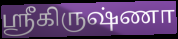
ஸ்ரீகிருஷ்ணா